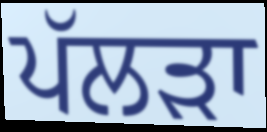
ਪੱਲੜਾ